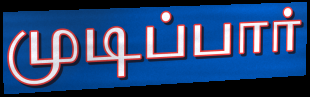
முடிப்பார்